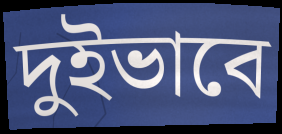
দুইভাবে